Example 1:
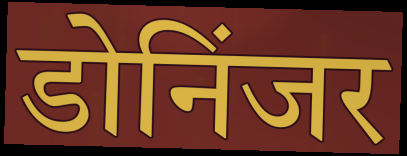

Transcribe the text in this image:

डोनिंजर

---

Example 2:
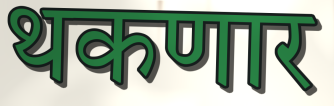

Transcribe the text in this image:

थकणार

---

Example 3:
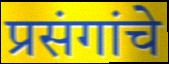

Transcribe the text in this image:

प्रसंगांचे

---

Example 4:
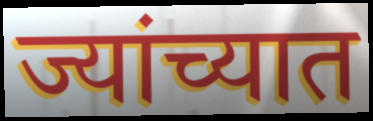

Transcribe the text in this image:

ज्यांच्यात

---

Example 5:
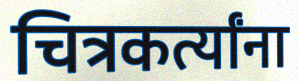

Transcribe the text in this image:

चित्रकर्त्यांना